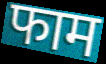
फाम